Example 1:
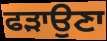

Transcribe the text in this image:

ਫੜਾਉਣਾ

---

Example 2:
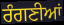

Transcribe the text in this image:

ਰੰਗਣੀਆਂ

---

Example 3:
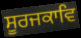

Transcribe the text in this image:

ਸੂਰਜਕਾਵਿ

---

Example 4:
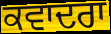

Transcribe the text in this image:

ਕਵਾਦਰਾ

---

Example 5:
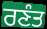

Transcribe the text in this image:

ਰਣੰਤ